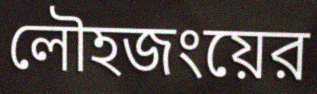
লৌহজংয়ের